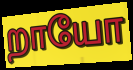
றாயோ